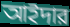
আইদার